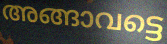
അങ്ങാവട്ടെ